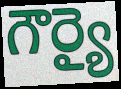
గౌర్యై